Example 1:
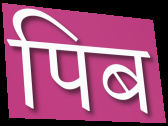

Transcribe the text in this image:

पिब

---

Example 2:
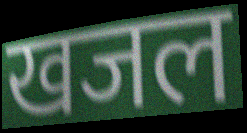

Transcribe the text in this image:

खजल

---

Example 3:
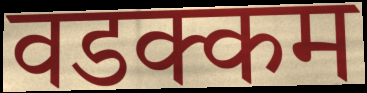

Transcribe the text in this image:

वडक्कम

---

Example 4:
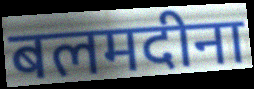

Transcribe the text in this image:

बलमदीना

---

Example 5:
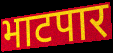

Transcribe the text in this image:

भाटपार